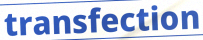
transfection